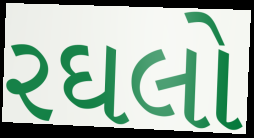
રઘલો